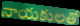
నాయకులతో